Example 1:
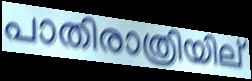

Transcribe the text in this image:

പാതിരാത്രിയില്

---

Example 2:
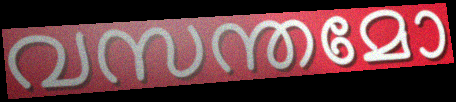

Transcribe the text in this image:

വസന്തമോ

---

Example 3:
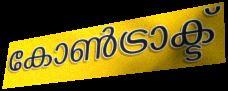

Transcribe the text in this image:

കോൺട്രാക്ട്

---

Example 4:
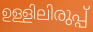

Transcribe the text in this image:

ഉള്ളിലിരുപ്പ്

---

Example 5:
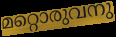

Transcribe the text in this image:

മറ്റൊരുവനു